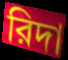
রিদা